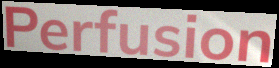
Perfusion